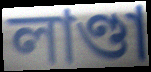
লাণ্ডা